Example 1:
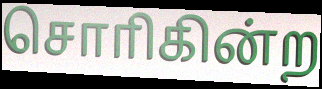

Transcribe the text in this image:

சொரிகின்ற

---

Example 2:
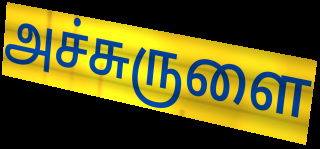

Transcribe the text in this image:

அச்சுருளை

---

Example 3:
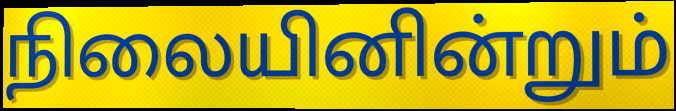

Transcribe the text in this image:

நிலையினின்றும்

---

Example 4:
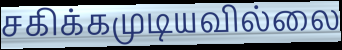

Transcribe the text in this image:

சகிக்கமுடியவில்லை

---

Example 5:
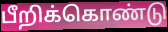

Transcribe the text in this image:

பீறிக்கொண்டு